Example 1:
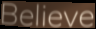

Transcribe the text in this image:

Believe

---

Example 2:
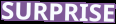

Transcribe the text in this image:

SURPRISE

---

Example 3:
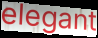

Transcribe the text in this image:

elegant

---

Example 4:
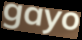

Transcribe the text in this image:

gayo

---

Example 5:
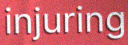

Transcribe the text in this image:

injuring